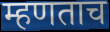
म्हणताच